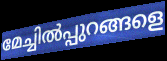
മേച്ചിൽപ്പുറങ്ങളെ